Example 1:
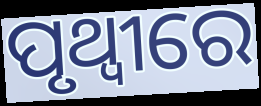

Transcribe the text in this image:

ପୃଥ୍ୱୀରେ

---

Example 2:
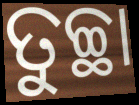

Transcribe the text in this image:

ତୁଚ୍ଛା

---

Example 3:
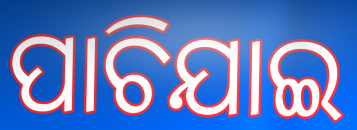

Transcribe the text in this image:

ପାଚିଯାଇ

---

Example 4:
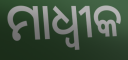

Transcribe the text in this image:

ମାଧ୍ୱୀକ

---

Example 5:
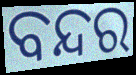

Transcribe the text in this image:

ବନ୍ଦର